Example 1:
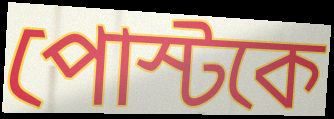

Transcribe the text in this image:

পোস্টকে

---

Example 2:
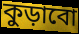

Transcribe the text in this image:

কুড়াবো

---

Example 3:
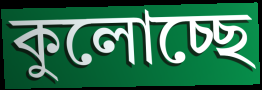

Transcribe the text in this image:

কুলোচ্ছে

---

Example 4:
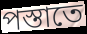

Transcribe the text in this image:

পস্তাতে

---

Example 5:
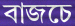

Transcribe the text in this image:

বাজচে